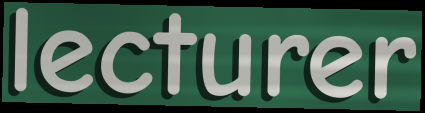
lecturer